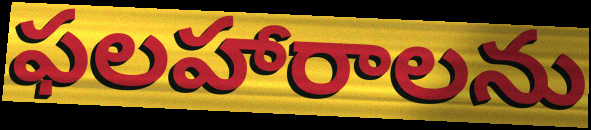
ఫలహారాలను